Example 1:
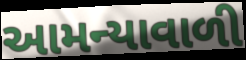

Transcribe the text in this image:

આમન્યાવાળી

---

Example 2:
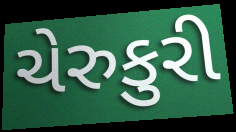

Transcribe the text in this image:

ચેરુકુરી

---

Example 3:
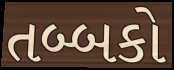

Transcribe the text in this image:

તબ્બકો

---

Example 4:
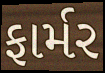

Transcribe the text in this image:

ફાર્મર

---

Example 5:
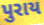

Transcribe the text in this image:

પુરાય